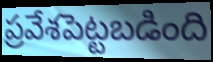
ప్రవేశపెట్టబడింది